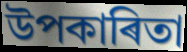
উপকাৰিতা